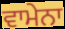
ਵਾਮੇਨਾ